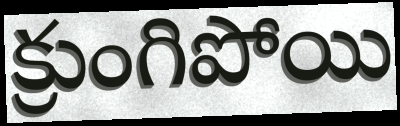
క్రుంగిపోయి